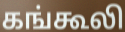
கங்கூலி